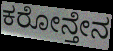
ಕರೋನ್ತೇನ